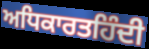
ਅਧਿਕਾਰਤਹਿੰਦੀ